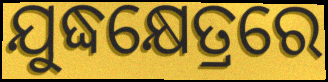
ଯୁଦ୍ଧକ୍ଷେତ୍ରରେ